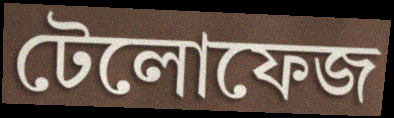
টেলোফেজ